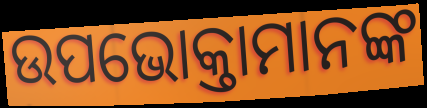
ଉପଭୋକ୍ତାମାନଙ୍କ